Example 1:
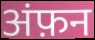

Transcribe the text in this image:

अंफ़न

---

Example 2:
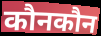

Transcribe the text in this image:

कौनकौन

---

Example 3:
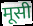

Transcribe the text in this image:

मूसी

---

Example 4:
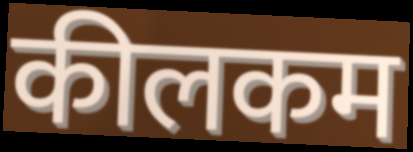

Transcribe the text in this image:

कीलकम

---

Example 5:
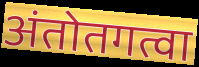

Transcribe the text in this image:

अंतोतगत्वा